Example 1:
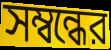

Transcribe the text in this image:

সম্বন্ধের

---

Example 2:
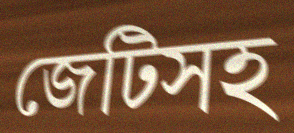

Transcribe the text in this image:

জেটিসহ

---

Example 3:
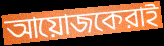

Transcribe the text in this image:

আয়োজকেরাই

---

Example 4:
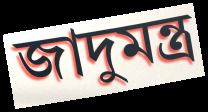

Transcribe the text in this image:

জাদুমন্ত্র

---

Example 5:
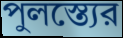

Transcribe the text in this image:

পুলস্ত্যের